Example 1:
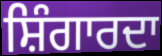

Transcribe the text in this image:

ਸ਼ਿੰਗਾਰਦਾ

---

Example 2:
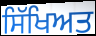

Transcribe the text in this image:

ਸਿੱਖਿਅਤ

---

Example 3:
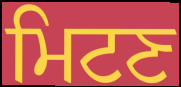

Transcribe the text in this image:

ਮਿਟਣ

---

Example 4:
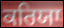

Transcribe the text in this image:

ਕਰਿਯਾ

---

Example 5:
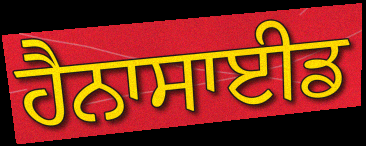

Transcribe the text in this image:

ਹੈਨਾਸਾਈਡ